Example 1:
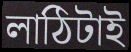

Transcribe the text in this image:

লাঠিটাই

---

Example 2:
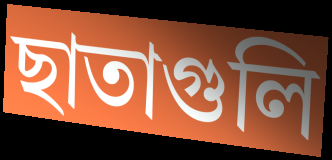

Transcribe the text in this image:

ছাতাগুলি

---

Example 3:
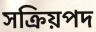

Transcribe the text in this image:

সক্রিয়পদ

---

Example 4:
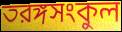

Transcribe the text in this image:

তরঙ্গসংকুল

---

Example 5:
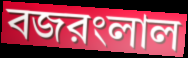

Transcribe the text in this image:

বজরংলাল